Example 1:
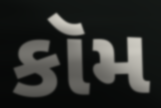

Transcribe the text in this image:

કૉમ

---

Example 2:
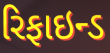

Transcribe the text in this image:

રિફાઇન્ડ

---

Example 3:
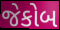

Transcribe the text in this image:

જેકોબ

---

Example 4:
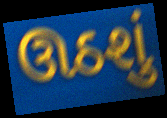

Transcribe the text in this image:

ઊઠશું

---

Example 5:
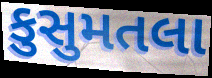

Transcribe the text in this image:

કુસુમતલા